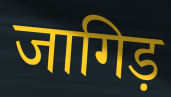
जागिड़